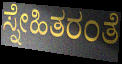
ಸ್ನೇಹಿತರಂತೆ